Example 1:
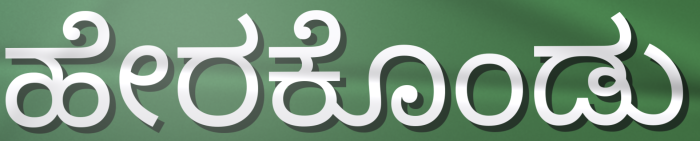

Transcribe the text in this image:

ಹೇರಕೊಂಡು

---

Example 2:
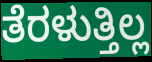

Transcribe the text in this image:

ತೆರಳುತ್ತಿಲ್ಲ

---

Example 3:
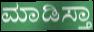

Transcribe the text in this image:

ಮಾಡಿಸ್ತಾ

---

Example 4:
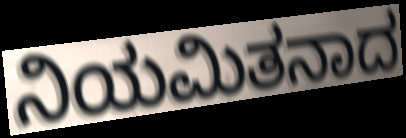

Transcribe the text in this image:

ನಿಯಮಿತನಾದ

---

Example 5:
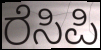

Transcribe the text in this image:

ರೆಸಿಪಿ